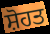
ਸ਼ੋਹਤ